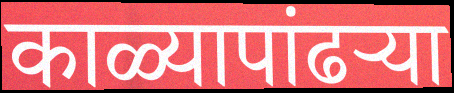
काळ्यापांढर्‍या